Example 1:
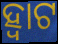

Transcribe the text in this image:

ହ୍ଵାଟ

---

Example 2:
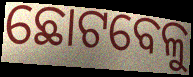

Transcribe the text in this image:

ଛୋଟବେଳୁ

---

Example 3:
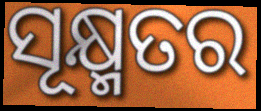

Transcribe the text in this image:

ସୂକ୍ଷ୍ମତର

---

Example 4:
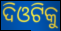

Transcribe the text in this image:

ଦିଓଟିକୁ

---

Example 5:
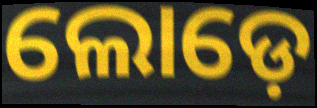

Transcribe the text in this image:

ଲୋଡ଼େ